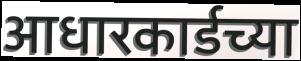
आधारकार्डच्या